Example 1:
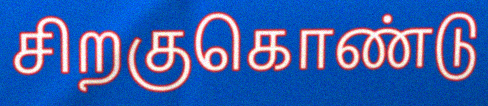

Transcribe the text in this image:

சிறகுகொண்டு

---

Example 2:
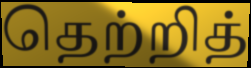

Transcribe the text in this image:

தெற்றித்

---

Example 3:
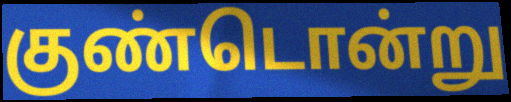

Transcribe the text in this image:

குண்டொன்று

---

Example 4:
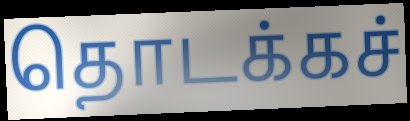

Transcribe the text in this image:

தொடக்கச்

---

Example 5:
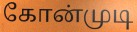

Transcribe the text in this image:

கோன்முடி